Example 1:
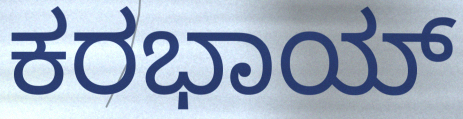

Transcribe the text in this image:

ಕರಭಾಯ್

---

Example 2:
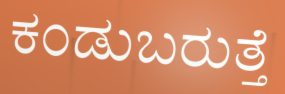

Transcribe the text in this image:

ಕಂಡುಬರುತ್ತೆ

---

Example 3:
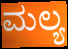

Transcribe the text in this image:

ಮಲ್ಯ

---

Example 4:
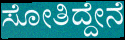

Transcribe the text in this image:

ಸೋತಿದ್ದೇನೆ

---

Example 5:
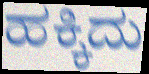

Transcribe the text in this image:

ಹಕ್ಕಿದು